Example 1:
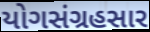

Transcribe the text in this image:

યોગસંગ્રહસાર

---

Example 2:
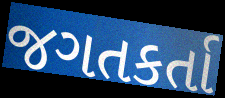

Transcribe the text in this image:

જગતકર્તા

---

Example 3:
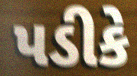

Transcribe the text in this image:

પડીકે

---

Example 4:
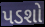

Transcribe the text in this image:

પડશો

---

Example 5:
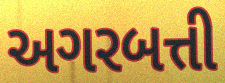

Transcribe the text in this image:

અગરબત્તી